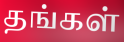
தங்கள்